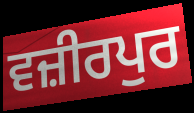
ਵਜ਼ੀਰਪੁਰ